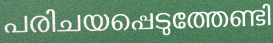
പരിചയപ്പെടുത്തേണ്ടി